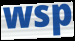
wsp